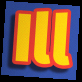
Ill